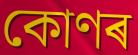
কোণৰ